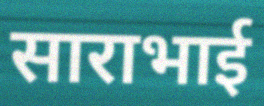
साराभाई